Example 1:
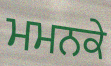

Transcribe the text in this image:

ਮਮਨਕੇ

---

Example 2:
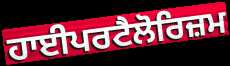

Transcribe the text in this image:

ਹਾਈਪਰਟੈਲੋਰਿਜ਼ਮ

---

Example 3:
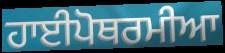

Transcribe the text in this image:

ਹਾਈਪੋਥਰਮੀਆ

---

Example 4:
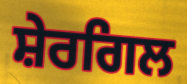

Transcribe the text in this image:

ਸ਼ੇਰਗਿਲ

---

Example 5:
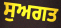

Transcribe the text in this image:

ਸੁਅਗਤ